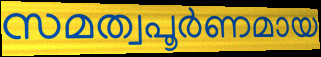
സമത്വപൂർണമായ